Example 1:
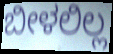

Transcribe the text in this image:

ಬೀಳಲಿಲ್ಲ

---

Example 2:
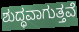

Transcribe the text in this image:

ಶುದ್ಧವಾಗುತ್ತವೆ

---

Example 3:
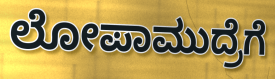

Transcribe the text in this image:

ಲೋಪಾಮುದ್ರೆಗೆ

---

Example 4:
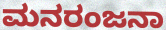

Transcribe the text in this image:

ಮನರಂಜನಾ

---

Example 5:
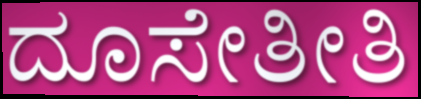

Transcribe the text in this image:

ದೂಸೇತೀತಿ